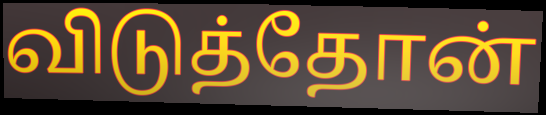
விடுத்தோன்